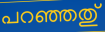
പറഞ്ഞതു്